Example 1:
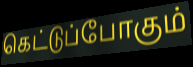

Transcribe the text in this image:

கெட்டுப்போகும்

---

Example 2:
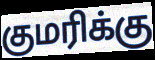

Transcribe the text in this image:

குமரிக்கு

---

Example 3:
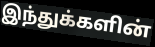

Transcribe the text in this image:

இந்துக்களின்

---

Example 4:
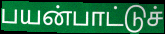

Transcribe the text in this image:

பயன்பாட்டுச்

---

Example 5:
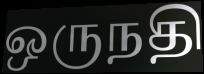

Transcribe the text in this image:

ஒருநதி